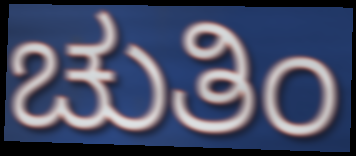
ಚುತಿಂ